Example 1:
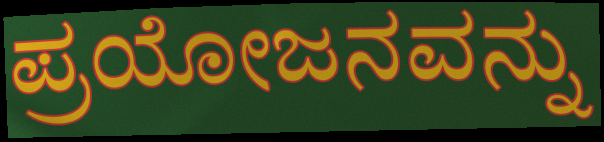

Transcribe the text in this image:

ಪ್ರಯೋಜನವನ್ನು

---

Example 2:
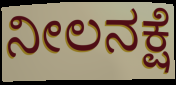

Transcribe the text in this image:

ನೀಲನಕ್ಷೆ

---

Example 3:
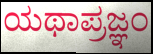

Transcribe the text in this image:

ಯಥಾಪ್ರಜ್ಞಂ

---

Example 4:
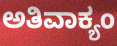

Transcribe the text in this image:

ಅತಿವಾಕ್ಯಂ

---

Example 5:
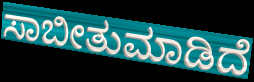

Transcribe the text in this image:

ಸಾಬೀತುಮಾಡಿದೆ